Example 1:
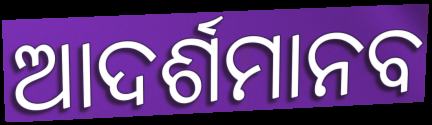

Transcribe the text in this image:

ଆଦର୍ଶମାନବ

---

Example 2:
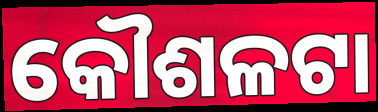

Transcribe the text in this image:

କୌଶଳଟା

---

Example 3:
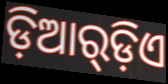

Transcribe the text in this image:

ଡ଼ିଆର୍‌ଡ଼ିଏ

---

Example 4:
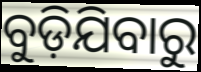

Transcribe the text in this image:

ବୁଡ଼ିଯିବାରୁ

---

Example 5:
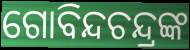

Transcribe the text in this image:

ଗୋବିନ୍ଦଚନ୍ଦ୍ରଙ୍କ